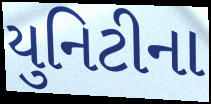
યુનિટીના